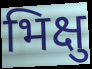
भिक्षु